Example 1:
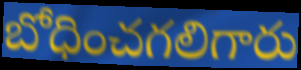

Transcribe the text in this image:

బోధించగలిగారు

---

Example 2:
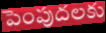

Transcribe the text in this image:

పెంపుదలకు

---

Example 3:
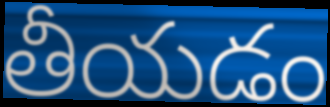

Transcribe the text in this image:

తీయడం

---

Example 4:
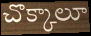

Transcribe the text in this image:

చొక్కాలూ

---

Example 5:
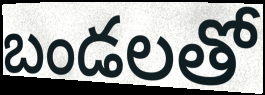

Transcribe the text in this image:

బండలతో